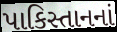
પાકિસ્તાનનાં